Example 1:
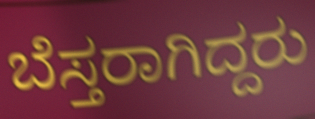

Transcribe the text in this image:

ಬೆಸ್ತರಾಗಿದ್ದರು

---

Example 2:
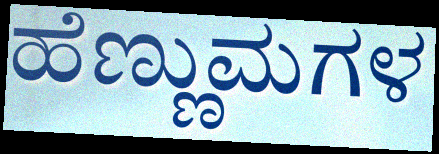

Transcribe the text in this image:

ಹೆಣ್ಣುಮಗಳ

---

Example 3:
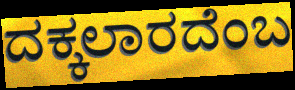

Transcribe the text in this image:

ದಕ್ಕಲಾರದೆಂಬ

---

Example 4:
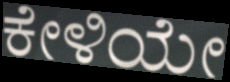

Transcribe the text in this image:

ಕೇಳಿಯೇ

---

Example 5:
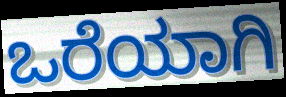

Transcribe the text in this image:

ಒರೆಯಾಗಿ